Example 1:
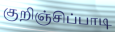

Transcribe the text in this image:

குறிஞ்சிப்பாடி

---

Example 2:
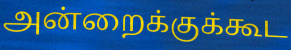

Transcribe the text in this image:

அன்றைக்குக்கூட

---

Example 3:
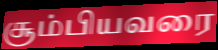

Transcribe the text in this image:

சூம்பியவரை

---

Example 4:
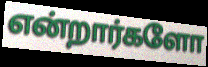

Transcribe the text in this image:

என்றார்களோ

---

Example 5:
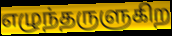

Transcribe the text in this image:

எழுந்தருளுகிற